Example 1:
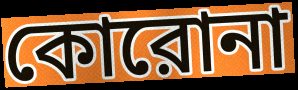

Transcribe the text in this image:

কোরোনা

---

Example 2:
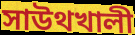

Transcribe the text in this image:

সাউথখালী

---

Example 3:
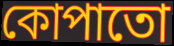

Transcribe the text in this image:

কোপাতো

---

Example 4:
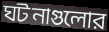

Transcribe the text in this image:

ঘটনাগুলোর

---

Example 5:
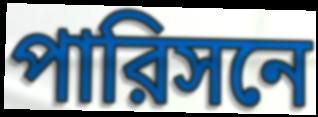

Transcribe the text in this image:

পারিসনে